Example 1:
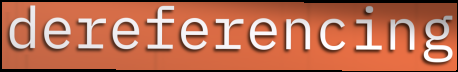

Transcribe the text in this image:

dereferencing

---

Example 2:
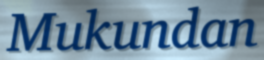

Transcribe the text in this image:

Mukundan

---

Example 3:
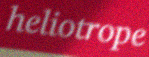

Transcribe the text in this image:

heliotrope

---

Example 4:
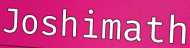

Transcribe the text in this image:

Joshimath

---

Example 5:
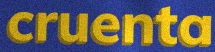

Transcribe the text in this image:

cruenta